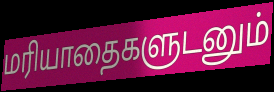
மரியாதைகளுடனும்